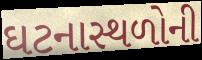
ઘટનાસ્થળોની